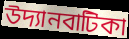
উদ্যানবাটিকা